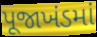
પૂજાખંડમાં